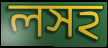
লসহ